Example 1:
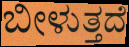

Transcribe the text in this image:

ಬೀಳುತ್ತದೆ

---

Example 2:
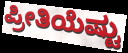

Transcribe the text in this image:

ಪ್ರೀತಿಯೆಷ್ಟು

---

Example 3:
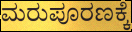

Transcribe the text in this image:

ಮರುಪೂರಣಕ್ಕೆ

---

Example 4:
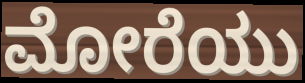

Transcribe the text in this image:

ಮೋರೆಯು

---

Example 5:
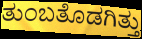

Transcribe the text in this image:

ತುಂಬತೊಡಗಿತ್ತು